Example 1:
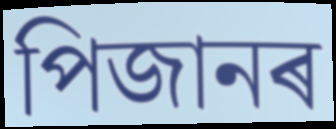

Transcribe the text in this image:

পিজানৰ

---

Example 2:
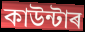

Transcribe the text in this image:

কাউন্টাৰ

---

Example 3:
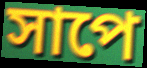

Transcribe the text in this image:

সাপে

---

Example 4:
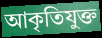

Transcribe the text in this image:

আকৃতিযুক্ত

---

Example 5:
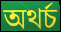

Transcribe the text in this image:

অথৰ্চ